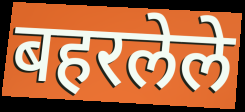
बहरलेले